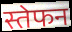
स्तेफन